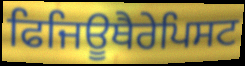
ਫਿਜਿਊਥੈਰੇਪਿਸਟ